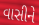
વાસીને